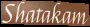
Shatakam